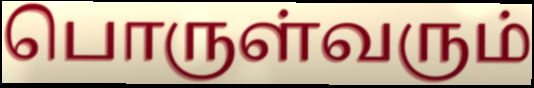
பொருள்வரும்